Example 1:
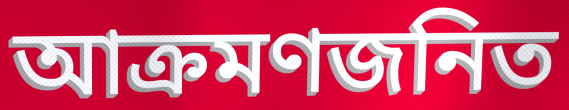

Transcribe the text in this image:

আক্রমণজনিত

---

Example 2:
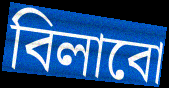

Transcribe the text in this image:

বিলাবো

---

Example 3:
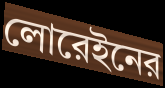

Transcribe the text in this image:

লোরেইনের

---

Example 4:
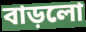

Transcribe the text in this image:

বাড়লো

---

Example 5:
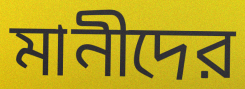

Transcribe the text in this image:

মানীদের